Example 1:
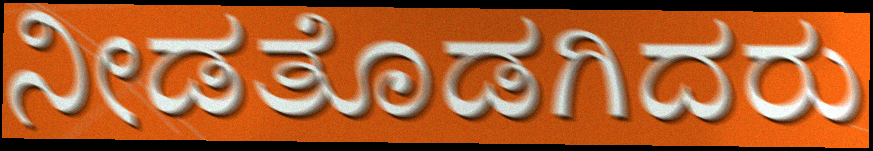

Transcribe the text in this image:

ನೀಡತೊಡಗಿದರು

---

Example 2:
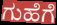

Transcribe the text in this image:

ಗುಹೆಗೆ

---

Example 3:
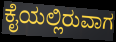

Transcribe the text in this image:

ಕೈಯಲ್ಲಿರುವಾಗ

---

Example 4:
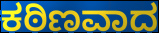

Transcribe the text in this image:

ಕಠಿಣವಾದ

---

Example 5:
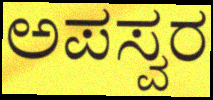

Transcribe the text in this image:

ಅಪಸ್ವರ